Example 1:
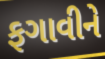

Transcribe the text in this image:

ફગાવીને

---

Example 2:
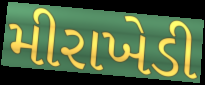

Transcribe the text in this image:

મીરાખેડી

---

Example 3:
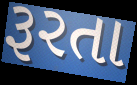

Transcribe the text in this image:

રૂરતા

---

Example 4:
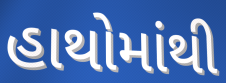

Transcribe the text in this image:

હાથોમાંથી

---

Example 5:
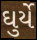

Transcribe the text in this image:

ઘુર્યે